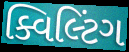
ક્વિલ્ટિંગ